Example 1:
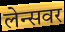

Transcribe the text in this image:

लेन्सवर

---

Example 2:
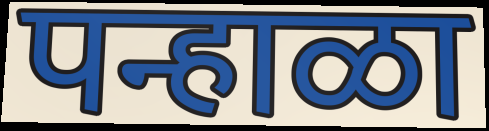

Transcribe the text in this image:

पन्हाळा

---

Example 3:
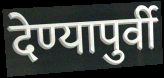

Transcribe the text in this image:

देण्यापुर्वी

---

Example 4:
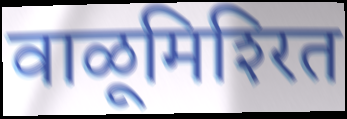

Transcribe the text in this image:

वाळूमिश्रित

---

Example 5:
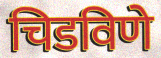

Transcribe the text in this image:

चिडविणे